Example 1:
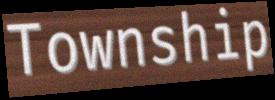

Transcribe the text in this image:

Township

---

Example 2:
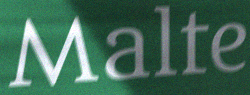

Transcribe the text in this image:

Malte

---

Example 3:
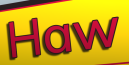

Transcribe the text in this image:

Haw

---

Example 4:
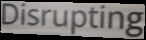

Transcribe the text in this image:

Disrupting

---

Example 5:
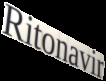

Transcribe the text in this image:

Ritonavir